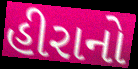
હીરાનો